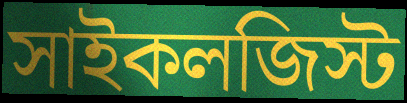
সাইকলজিস্ট